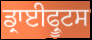
ਡ੍ਰਾਈਫ੍ਰੂਟਸ